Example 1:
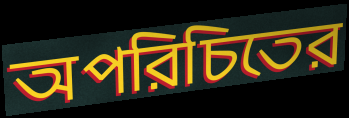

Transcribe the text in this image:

অপরিচিতের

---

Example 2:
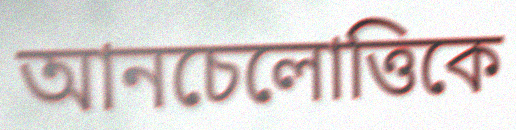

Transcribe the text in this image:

আনচেলোত্তিকে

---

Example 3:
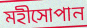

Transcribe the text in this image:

মহীসোপান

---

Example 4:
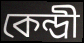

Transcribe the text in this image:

কেন্দ্রী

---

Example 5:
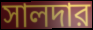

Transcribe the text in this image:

সালদার